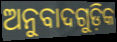
ଅନୁବାଦଗୁଡ଼ିକ